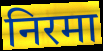
निरमा